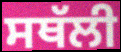
ਸਥੱਲੀ